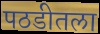
पठडीतला